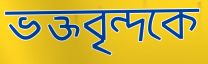
ভক্তবৃন্দকে